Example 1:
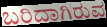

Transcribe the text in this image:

ಬರಿದಾಗಿರುವ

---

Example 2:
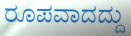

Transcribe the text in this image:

ರೂಪವಾದದ್ದು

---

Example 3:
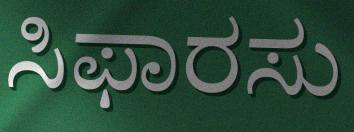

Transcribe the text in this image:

ಸಿಫಾರಸು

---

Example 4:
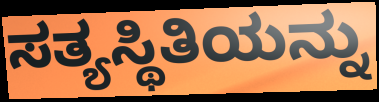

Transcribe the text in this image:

ಸತ್ಯಸ್ಥಿತಿಯನ್ನು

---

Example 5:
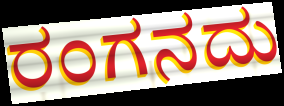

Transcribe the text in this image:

ರಂಗನದು